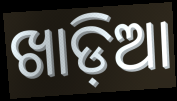
ଖାଡ଼ିଆ